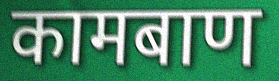
कामबाण